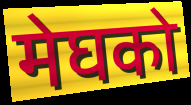
मेघको